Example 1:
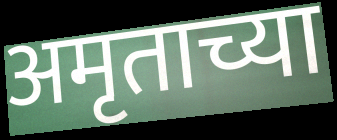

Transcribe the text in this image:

अमृताच्या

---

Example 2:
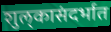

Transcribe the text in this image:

शुल्कासंदर्भात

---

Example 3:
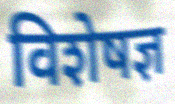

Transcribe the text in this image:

विशेषज्ञ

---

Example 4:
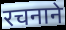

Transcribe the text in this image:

रचनाने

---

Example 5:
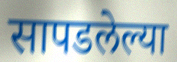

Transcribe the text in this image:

सापडलेल्‍या